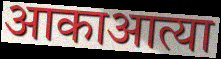
आकाआत्या